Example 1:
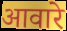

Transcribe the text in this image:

आवारे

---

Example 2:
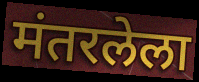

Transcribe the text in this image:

मंतरलेला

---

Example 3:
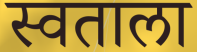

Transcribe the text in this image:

स्वताला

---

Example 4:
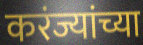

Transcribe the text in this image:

करंज्यांच्या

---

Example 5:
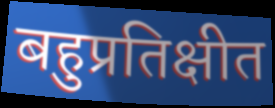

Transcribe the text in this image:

बहुप्रतिक्षीत